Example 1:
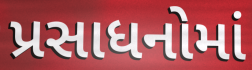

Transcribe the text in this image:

પ્રસાધનોમાં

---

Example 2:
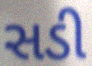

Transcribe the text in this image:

સડી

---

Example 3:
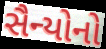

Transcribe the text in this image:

સૈન્યોનો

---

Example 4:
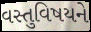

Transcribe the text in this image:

વસ્તુવિષયને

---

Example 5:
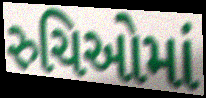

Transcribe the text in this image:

રુચિઓમાં